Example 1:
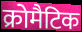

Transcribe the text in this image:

क्रोमैटिक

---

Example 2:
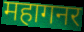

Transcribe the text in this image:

महागनर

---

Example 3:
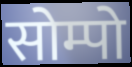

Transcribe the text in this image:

सोम्पो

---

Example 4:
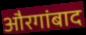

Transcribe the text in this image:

औरगांबाद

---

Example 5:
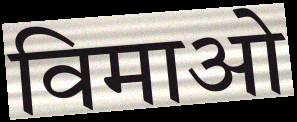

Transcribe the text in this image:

विमाओ